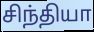
சிந்தியா